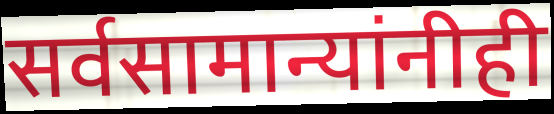
सर्वसामान्यांनीही